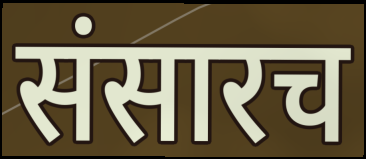
संसारच